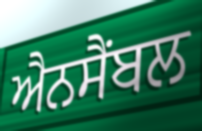
ਐਨਸੈਂਬਲ